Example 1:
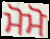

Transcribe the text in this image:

ਮੋਮੋ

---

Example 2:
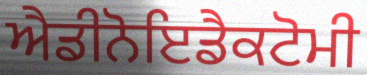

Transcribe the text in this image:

ਐਡੀਨੋਇਡੈਕਟੋਮੀ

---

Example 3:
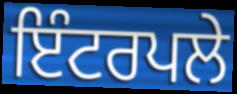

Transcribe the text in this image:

ਇੰਟਰਪਲੇ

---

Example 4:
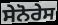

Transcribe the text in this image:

ਸੇਨੋਰੇਸ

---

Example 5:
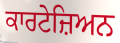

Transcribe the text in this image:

ਕਾਰਟੇਜ਼ਿਅਨ